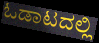
ಓಡಾಟದಲ್ಲಿ